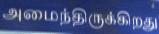
அமைந்திருக்கிறது